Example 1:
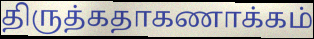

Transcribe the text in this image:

திருத்கதாகணாக்கம்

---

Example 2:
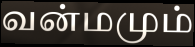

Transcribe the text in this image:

வன்மமும்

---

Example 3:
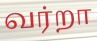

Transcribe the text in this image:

வர்றா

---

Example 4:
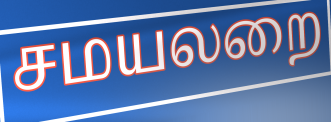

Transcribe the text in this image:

சமயலறை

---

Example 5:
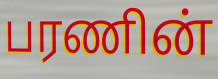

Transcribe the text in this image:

பரணின்